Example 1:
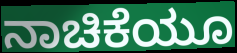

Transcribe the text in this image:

ನಾಚಿಕೆಯೂ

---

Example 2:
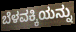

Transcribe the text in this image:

ಬೆಳವಕ್ಕಿಯನ್ನು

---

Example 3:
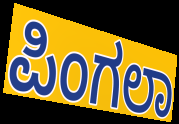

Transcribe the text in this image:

ಪಿಂಗಲಾ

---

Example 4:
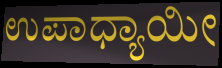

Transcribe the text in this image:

ಉಪಾಧ್ಯಾಯೀ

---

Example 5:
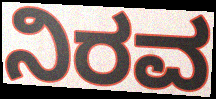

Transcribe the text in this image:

ನಿರವ